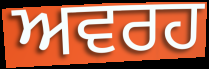
ਅਵਰਹ